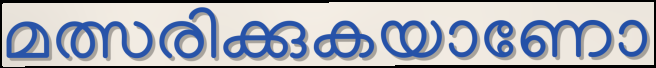
മത്സരിക്കുകയാണോ